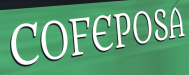
COFEPOSA